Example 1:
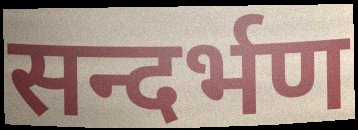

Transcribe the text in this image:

सन्दर्भण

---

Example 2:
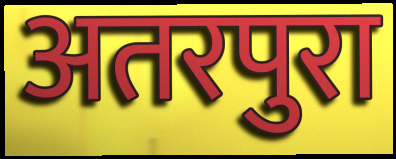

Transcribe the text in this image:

अतरपुरा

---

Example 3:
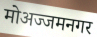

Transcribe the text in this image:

मोअज्जमनगर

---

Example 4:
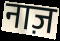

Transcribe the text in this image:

नाज़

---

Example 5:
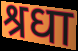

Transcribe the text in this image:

श्रधा